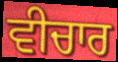
ਵੀਚਾਰ